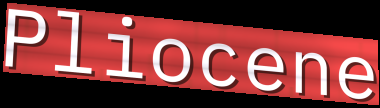
Pliocene